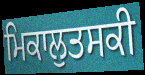
ਮਿਕਾਲੁਤਸਕੀ